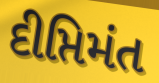
દીપ્તિમંત